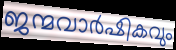
ജന്മവാർഷികവും